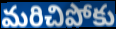
మరిచిపోకు